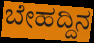
ಬೇಹದ್ದಿನ